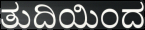
ತುದಿಯಿಂದ